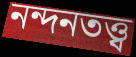
নন্দনতত্ত্ব